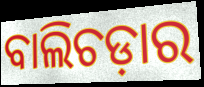
ବାଲିଚଡ଼ାର